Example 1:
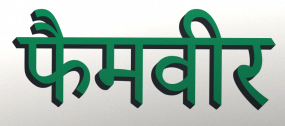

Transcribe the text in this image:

फैमवीर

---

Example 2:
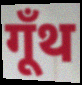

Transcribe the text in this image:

गूँथ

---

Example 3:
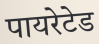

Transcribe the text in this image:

पायरेटेड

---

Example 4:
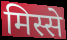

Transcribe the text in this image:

मिस्से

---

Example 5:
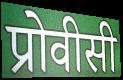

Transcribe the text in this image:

प्रोवीसी